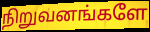
நிறுவனங்களே